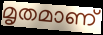
മൃതമാണ്